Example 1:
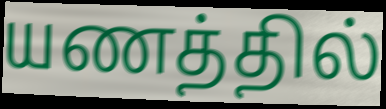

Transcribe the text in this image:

யணத்தில்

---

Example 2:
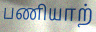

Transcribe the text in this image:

பணியாற்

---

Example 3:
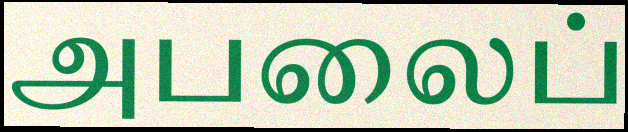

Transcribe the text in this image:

அபலைப்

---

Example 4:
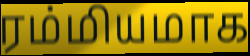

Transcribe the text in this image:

ரம்மியமாக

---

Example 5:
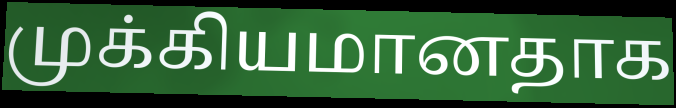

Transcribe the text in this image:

முக்கியமானதாக